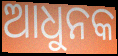
ଆଧୁନକ